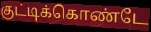
குட்டிக்கொண்டே